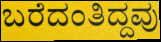
ಬರೆದಂತಿದ್ದವು